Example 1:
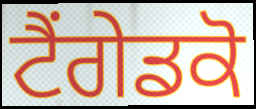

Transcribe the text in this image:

ਟੈਂਗੇਡਕੋ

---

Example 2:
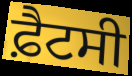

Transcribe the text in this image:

ਫ਼ੈਟਸੀ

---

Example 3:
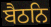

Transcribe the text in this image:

ਬੈਠਨਿ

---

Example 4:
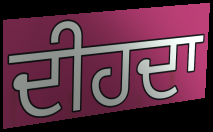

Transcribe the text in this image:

ਦੀਹਦਾ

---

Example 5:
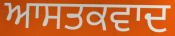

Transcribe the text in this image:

ਆਸਤਕਵਾਦ